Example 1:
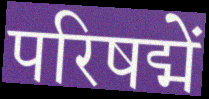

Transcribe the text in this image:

परिषद्में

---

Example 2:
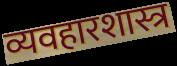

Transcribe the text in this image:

व्यवहारशास्त्र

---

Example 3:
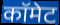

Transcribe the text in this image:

कॉमेट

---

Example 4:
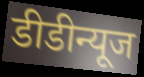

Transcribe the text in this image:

डीडीन्यूज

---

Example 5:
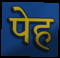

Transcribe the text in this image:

पेह